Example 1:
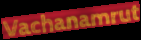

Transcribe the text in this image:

Vachanamrut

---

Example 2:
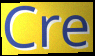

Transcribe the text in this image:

Cre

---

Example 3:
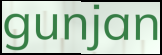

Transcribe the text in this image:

gunjan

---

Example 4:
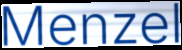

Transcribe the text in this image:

Menzel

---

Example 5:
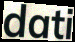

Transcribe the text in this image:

dati